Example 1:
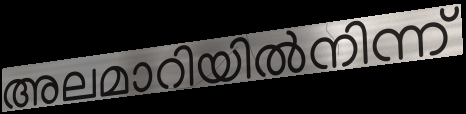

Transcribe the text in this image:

അലമാറിയിൽനിന്ന്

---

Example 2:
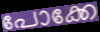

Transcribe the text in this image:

പോക്കേ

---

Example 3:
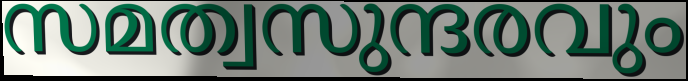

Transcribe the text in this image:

സമത്വസുന്ദരവും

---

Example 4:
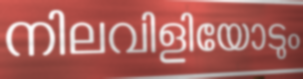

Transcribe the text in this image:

നിലവിളിയോടും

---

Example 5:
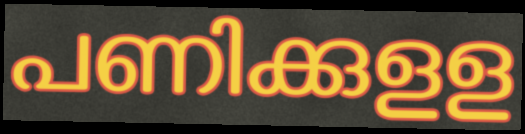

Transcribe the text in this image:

പണിക്കുളള